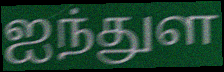
ஐந்துள